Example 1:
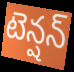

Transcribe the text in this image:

టెన్షన్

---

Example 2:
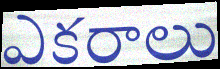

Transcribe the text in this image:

ఎకరాలు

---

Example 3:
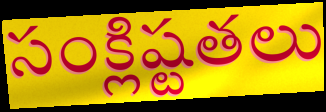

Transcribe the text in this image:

సంక్లిష్టతలు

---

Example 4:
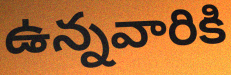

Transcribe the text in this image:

ఉన్నవారికి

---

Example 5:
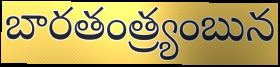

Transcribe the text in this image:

బారతంత్ర్యంబున